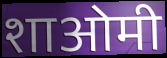
शाओमी